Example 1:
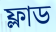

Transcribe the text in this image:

ফ্লাড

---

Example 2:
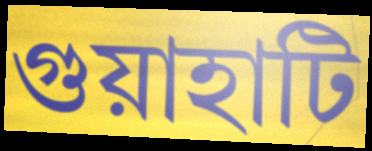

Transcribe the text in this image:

গুয়াহাটি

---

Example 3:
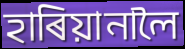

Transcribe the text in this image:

হাৰিয়ানালৈ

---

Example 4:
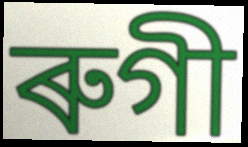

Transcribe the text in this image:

ৰুগী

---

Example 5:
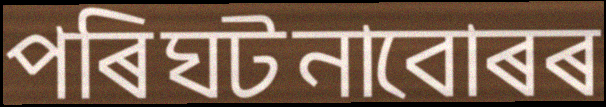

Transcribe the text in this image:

পৰিঘটনাবোৰৰ